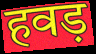
हवड़